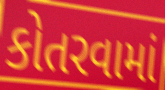
કોતરવામાં